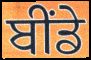
ਬੀਂਡੇ